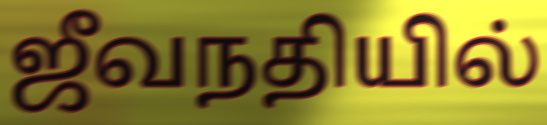
ஜீவநதியில்